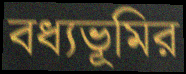
বধ্যভূমির